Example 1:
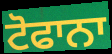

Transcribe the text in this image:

ਟੋਫਾਨਾ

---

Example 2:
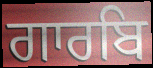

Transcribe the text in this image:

ਗਾਰਬਿ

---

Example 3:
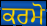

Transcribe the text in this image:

ਕਰਮੋ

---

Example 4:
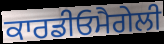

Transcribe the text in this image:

ਕਾਰਡੀਓਮੈਗੇਲੀ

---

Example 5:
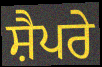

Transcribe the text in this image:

ਸ਼ੈਪਰੇ